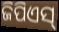
ଜିପିଏସ୍